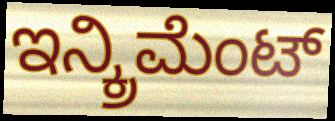
ಇನ್ಕ್ರಿಮೆಂಟ್